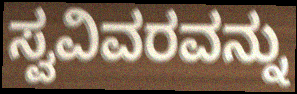
ಸ್ವವಿವರವನ್ನು